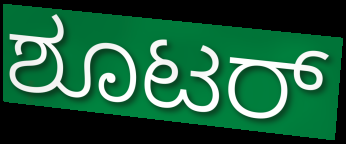
ಶೂಟರ್